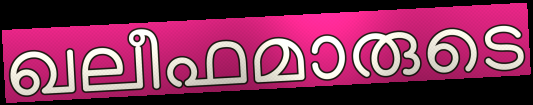
ഖലീഫമാരുടെ